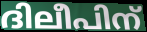
ദിലീപിന്